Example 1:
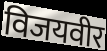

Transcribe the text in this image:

विजयवीर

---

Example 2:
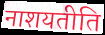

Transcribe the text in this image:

नाशयतीति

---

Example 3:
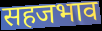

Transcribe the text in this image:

सहजभाव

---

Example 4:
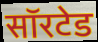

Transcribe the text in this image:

सॉरटेड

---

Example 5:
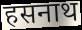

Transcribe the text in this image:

हसनाथ